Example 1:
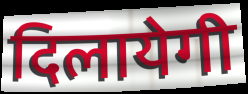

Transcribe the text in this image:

दिलायेगी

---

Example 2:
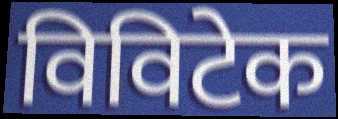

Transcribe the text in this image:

विविटेक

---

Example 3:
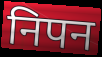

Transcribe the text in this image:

निपन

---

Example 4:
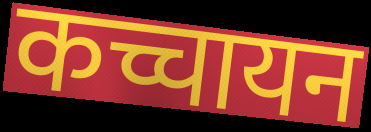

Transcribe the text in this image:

कच्चायन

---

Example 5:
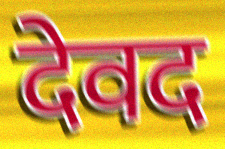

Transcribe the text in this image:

देवद